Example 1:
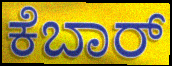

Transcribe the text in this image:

ಕೆಬಾರ್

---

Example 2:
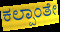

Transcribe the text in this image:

ಕಲ್ಪಾಂತೇ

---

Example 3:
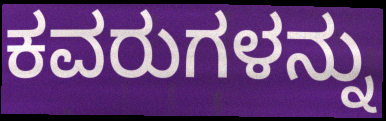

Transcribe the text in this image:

ಕವರುಗಳನ್ನು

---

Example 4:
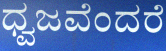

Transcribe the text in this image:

ಧ್ವಜವೆಂದರೆ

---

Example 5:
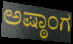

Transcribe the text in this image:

ಅಷ್ಠಾಂಗ